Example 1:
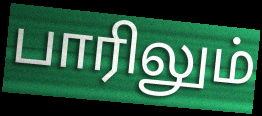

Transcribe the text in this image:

பாரிலும்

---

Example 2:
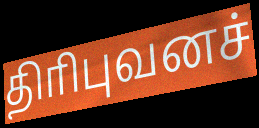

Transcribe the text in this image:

திரிபுவனச்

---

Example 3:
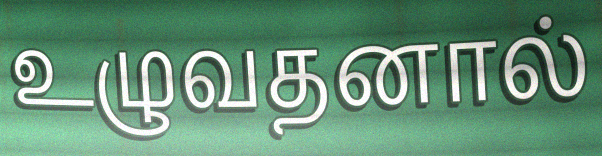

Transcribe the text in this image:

உழுவதனால்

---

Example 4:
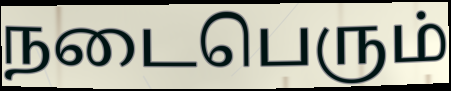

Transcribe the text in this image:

நடைபெரும்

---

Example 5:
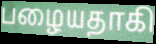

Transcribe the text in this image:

பழையதாகி